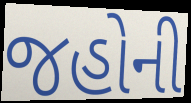
જહોની